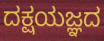
ದಕ್ಷಯಜ್ಞದ